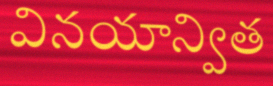
వినయాన్విత